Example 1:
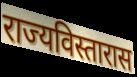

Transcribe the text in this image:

राज्यविस्तारास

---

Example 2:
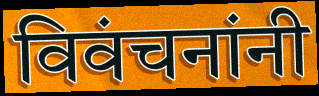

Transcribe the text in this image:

विवंचनांनी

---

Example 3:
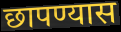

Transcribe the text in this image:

छापण्यास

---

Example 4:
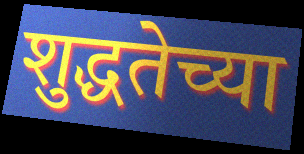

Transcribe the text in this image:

शुद्धतेच्या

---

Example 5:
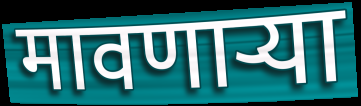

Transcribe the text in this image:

मावणाऱ्या